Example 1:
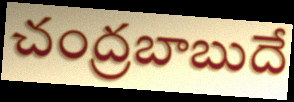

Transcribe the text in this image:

చంద్రబాబుదే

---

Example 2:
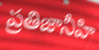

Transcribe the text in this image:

ప్రతిజానీహి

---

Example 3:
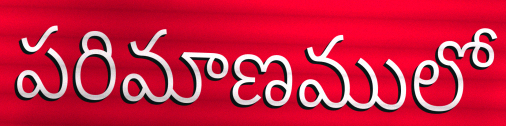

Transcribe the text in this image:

పరిమాణములో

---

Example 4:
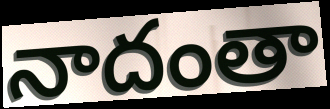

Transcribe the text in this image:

నాదంతా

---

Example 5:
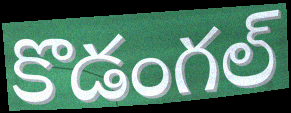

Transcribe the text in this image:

కొడంగల్